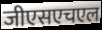
जीएसएचएल